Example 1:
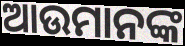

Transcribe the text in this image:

ଆଉମାନଙ୍କ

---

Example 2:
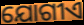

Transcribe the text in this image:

ଯୋଗୀଏ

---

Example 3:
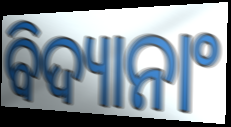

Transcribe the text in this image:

ବିଦ୍ୟାନାଂ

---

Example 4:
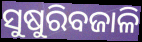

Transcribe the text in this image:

ସୁଷୁରିବଜାଳି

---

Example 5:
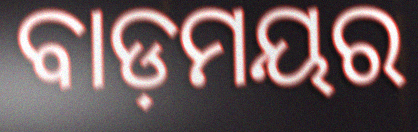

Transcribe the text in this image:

ବାଡ଼ମୟର